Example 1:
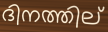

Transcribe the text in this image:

ദിനത്തില്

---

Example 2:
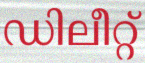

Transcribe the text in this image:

ഡിലീറ്റ്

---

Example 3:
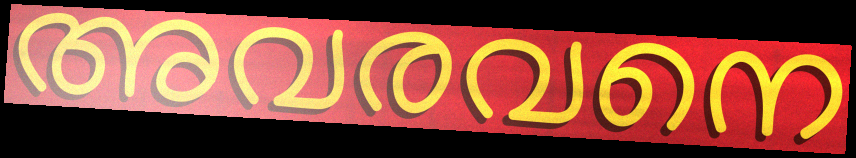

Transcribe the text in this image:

അവരവനെ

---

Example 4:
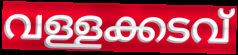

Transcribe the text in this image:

വള്ളക്കടവ്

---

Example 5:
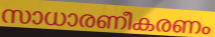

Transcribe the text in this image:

സാധാരണീകരണം